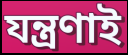
যন্ত্রণাই